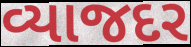
વ્યાજદર